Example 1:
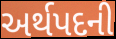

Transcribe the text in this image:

અર્થપદની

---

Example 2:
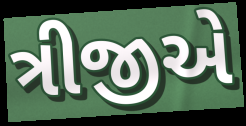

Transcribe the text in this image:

ત્રીજીએ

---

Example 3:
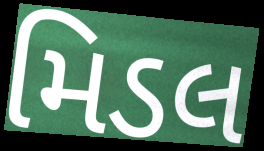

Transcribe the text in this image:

મિડલ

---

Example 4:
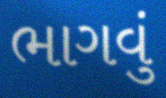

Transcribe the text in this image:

ભાગવું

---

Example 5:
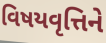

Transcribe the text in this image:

વિષયવૃત્તિને